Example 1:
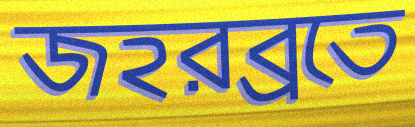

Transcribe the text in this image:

জহরব্রতে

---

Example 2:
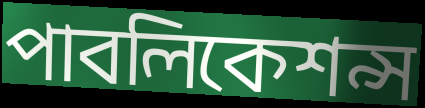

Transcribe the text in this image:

পাবলিকেশন্স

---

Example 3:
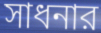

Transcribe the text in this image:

সাধনার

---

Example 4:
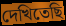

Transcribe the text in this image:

দেখিতেছি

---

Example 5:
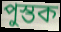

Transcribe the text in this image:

পুস্তক